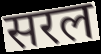
सरल